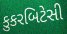
કુકરબિટેસી